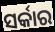
ସର୍କାର